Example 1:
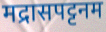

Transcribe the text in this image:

मद्रासपट्टनम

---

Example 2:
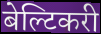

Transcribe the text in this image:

बेल्टिकरी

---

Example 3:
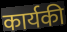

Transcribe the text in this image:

कार्यकी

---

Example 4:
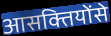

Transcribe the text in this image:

आसक्तियोंसे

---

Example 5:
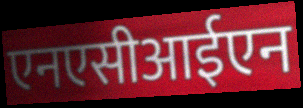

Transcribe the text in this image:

एनएसीआईएन